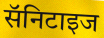
सॅनिटाइज